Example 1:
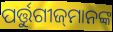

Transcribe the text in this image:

ପର୍ତ୍ତୁଗୀଜ୍‌ମାନଙ୍କ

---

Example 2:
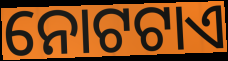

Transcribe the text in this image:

ନୋଟଟାଏ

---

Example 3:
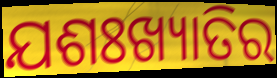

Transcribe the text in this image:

ଯଶଃଖ୍ୟାତିର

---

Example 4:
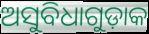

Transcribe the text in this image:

ଅସୁବିଧାଗୁଡ଼ାକ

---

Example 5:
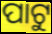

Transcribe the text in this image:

ପାଟୁ